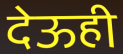
देऊही